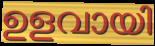
ഉളവായി